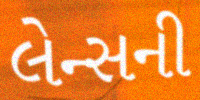
લેન્સની